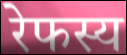
रेफस्य